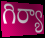
గిర్యా